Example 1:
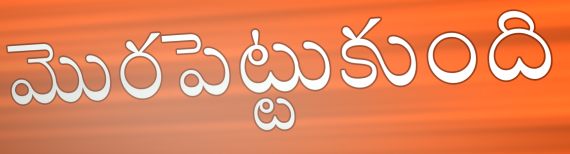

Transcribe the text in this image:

మొరపెట్టుకుంది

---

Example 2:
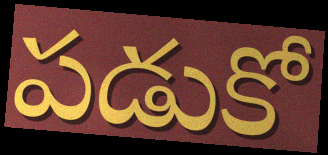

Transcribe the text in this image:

పడుకో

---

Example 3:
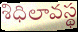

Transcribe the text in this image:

శిధిలావస్థ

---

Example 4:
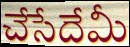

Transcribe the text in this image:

చేసేదేమీ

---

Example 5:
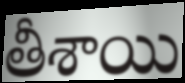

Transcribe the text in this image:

తీశాయి